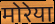
मोरेया